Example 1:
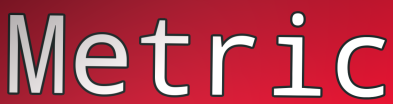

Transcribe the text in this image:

Metric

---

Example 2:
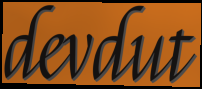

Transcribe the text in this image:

devdut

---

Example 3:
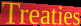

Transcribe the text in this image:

Treaties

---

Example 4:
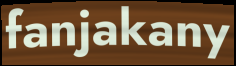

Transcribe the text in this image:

fanjakany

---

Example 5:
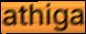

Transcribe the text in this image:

athiga